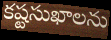
కష్టసుఖాలను